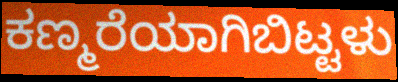
ಕಣ್ಮರೆಯಾಗಿಬಿಟ್ಟಳು